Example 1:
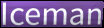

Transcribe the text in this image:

Iceman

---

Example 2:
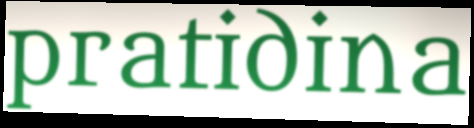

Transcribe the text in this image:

pratidina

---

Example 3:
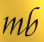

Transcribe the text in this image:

mb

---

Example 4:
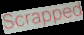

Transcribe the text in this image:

Scrapped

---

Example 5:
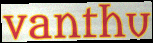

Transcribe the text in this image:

vanthu